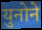
युनोने